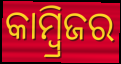
କାମ୍ବ୍ରିଜର